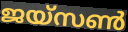
ജയ്സൺ